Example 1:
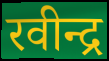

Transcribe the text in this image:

रवीन्द्र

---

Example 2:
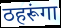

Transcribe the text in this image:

ठहरूंगा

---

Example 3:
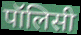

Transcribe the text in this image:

पॉलिसी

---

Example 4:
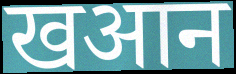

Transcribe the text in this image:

खआन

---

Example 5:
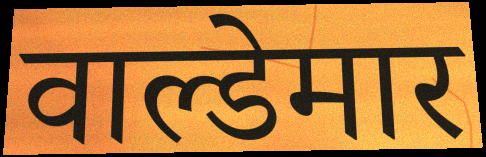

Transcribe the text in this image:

वाल्डेमार